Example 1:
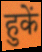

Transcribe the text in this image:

हुकें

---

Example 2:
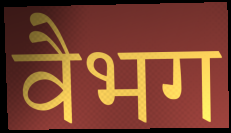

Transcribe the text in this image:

वैभग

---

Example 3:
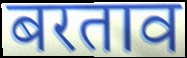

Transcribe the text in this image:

बरताव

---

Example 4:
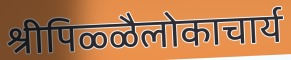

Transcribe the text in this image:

श्रीपिळ्ळैलोकाचार्य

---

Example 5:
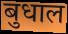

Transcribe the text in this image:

बुधाल